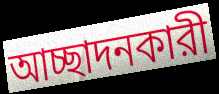
আচ্ছাদনকারী